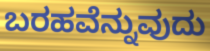
ಬರಹವೆನ್ನುವುದು